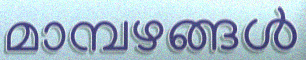
മാമ്പഴങ്ങൾ